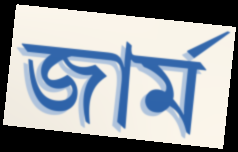
জার্ম